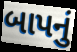
બાપનું